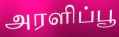
அரளிப்பூ